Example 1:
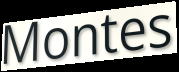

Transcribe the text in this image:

Montes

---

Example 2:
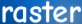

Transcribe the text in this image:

raster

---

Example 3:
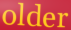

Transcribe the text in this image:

older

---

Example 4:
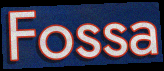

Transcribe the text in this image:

Fossa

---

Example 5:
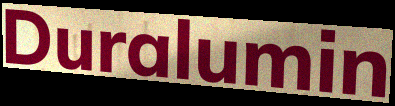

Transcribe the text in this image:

Duralumin